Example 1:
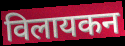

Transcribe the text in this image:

विलायकन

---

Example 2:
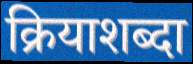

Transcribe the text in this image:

क्रियाशब्दा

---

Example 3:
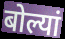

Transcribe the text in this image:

बोल्यां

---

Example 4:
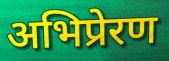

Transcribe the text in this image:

अभिप्रेरण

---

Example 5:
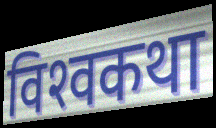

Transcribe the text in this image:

विश्वकथा